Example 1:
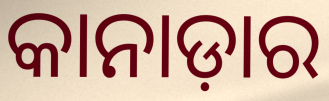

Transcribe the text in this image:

କାନାଡ଼ାର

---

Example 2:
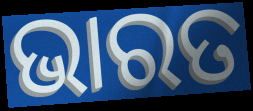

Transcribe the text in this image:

ଭାରତ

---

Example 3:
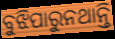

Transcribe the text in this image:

ବୁଝିପାରୁନଥାନ୍ତି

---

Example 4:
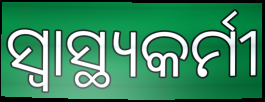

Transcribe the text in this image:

ସ୍ୱାସ୍ଥ୍ୟକର୍ମୀ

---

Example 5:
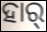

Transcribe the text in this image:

ହାର୍